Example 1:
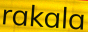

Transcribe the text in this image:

rakala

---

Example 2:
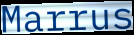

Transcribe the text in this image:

Marrus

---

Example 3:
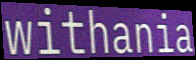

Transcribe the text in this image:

withania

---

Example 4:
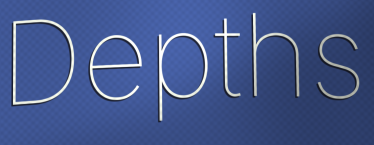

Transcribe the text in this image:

Depths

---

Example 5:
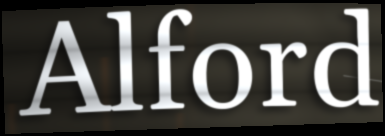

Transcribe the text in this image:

Alford